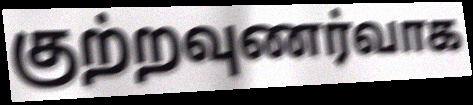
குற்றவுணர்வாக